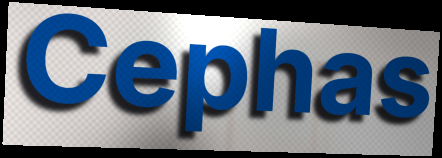
Cephas